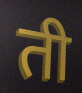
ती